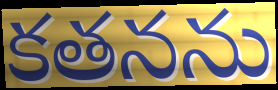
కతనను